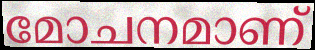
മോചനമാണ്